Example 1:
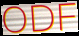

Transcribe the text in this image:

ODF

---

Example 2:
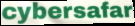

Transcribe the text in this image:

cybersafar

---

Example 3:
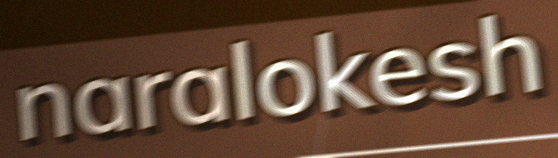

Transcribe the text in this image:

naralokesh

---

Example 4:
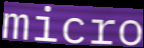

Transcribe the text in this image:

micro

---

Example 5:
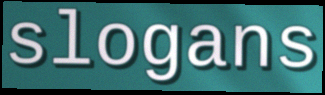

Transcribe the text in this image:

slogans